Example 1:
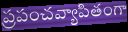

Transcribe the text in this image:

ప్రపంచవ్యాపితంగా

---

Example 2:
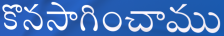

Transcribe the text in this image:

కొనసాగించాము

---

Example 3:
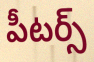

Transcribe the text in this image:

పీటర్స్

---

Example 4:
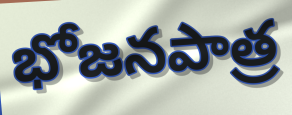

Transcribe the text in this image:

భోజనపాత్ర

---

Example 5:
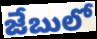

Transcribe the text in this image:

జేబులో